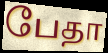
பேதா